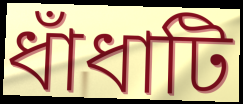
ধাঁধাটি